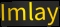
Imlay